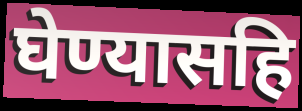
घेण्यासहि